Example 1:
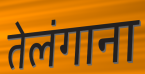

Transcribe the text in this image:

तेलंगाना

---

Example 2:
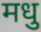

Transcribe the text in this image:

मधु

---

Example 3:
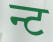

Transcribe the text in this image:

न्ट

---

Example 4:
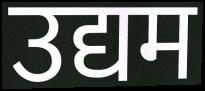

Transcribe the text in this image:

उद्यम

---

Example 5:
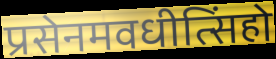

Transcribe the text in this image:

प्रसेनमवधीत्सिंहो